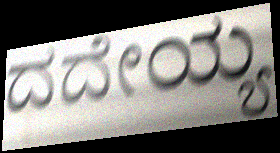
ದದೇಯ್ಯ